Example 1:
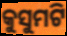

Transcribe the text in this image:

କୁସୁମଟି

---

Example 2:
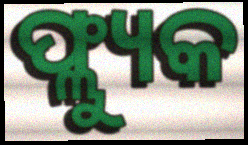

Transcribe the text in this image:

ଫ୍ଲ୍ୟୁକ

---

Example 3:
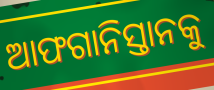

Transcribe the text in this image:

ଆଫଗାନିସ୍ତାନକୁ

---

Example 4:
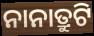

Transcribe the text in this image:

ନାନାତ୍ରୁଟି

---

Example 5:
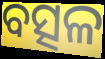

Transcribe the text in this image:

ବତ୍ସଳ